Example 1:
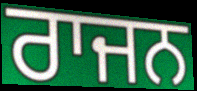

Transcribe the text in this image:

ਰਾਜਨ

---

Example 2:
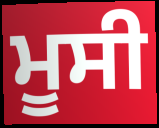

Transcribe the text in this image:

ਮੂਸੀ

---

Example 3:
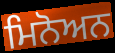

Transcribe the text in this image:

ਮਿਨੋਅਨ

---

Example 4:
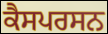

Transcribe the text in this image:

ਕੈਸਪਰਸਨ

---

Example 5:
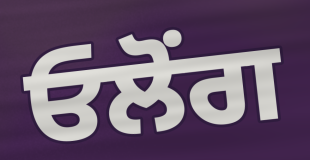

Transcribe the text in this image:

ਓਲੋਂਗ